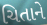
ચિતાને